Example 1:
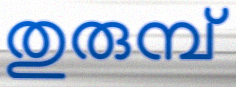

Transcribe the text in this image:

തുരുമ്പ്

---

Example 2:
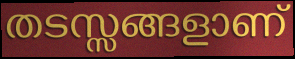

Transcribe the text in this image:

തടസ്സങ്ങളാണ്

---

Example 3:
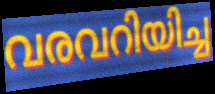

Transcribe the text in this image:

വരവറിയിച്ച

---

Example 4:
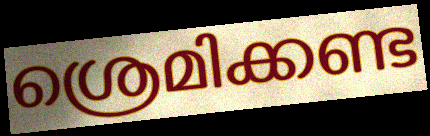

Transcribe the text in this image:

ശ്രെമിക്കണ്ട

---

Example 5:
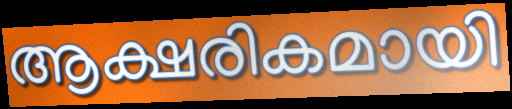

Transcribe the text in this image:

ആക്ഷരികമായി